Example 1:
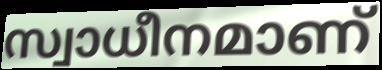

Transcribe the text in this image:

സ്വാധീനമാണ്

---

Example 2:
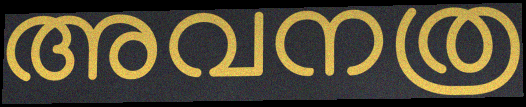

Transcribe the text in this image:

അവനത്ര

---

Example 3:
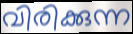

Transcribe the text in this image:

വിരിക്കുന്ന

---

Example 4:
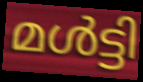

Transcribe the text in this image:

മൾട്ടി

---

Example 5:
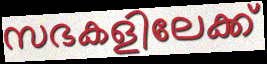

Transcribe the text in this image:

സഭകളിലേക്ക്